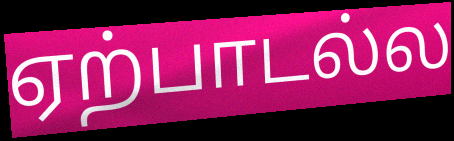
ஏற்பாடல்ல